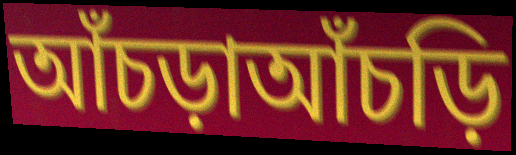
আঁচড়াআঁচড়ি